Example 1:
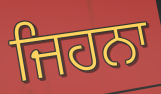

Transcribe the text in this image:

ਜਿਹਨਾ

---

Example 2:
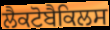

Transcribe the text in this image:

ਲੈਕਟੋਬੈਕਿਲਸ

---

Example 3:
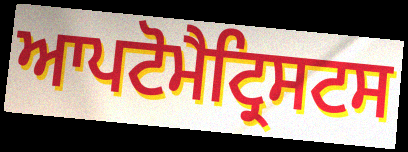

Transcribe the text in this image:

ਆਪਟੋਮੈਟ੍ਰਿਸਟਸ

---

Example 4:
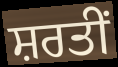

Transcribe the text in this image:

ਸ਼ਰਤੀਂ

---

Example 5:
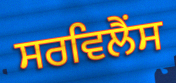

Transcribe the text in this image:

ਸਰਵਿਲੈਂਸ